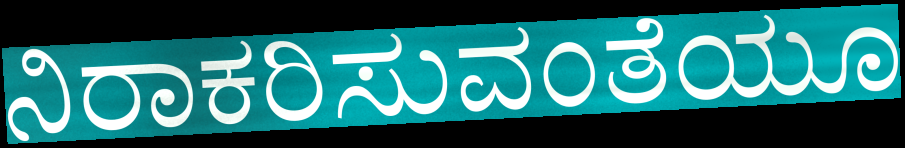
ನಿರಾಕರಿಸುವಂತೆಯೂ